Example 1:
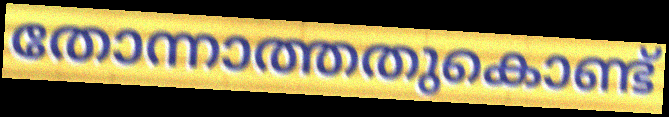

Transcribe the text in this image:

തോന്നാത്തതുകൊണ്ട്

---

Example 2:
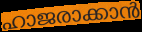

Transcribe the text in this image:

ഹാജരാക്കാൻ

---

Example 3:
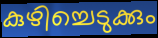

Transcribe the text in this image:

കുഴിച്ചെടുക്കും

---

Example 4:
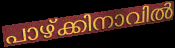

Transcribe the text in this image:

പാഴ്ക്കിനാവിൽ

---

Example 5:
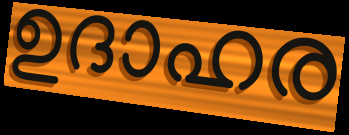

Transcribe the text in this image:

ഉദാഹര